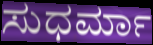
ಸುಧರ್ಮಾ